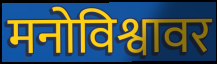
मनोविश्वावर